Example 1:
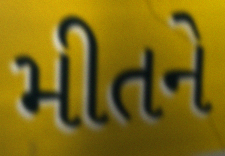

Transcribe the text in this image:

મીતને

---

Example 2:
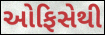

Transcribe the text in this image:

ઓફિસેથી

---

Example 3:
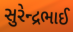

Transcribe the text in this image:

સુરેન્દ્રભાઈ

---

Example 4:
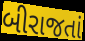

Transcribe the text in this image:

બીરાજતાં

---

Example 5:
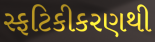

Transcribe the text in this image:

સ્ફટિકીકરણથી